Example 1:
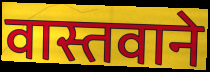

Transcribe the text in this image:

वास्तवाने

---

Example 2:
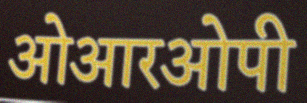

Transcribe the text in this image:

ओआरओपी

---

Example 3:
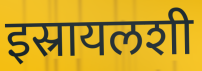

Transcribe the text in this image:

इस्रायलशी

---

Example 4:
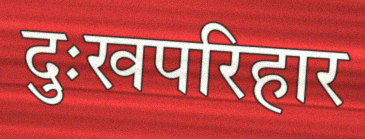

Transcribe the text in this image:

दुःखपरिहार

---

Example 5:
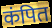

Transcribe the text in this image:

कंपित